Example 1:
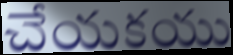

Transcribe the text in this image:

చేయకయు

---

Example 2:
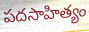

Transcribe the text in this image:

పదసాహిత్యం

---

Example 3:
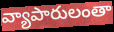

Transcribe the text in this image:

వ్యాపారులంతా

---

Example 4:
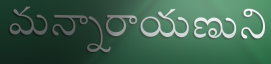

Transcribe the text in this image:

మన్నారాయణుని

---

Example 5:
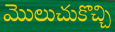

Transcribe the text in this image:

మొలుచుకొచ్చి